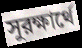
সুরক্ষার্থে